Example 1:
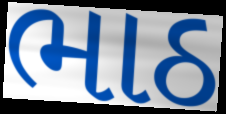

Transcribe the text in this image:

ભાઠ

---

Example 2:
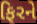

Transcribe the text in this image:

ફિરને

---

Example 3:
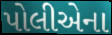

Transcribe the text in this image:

પોલીએના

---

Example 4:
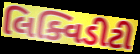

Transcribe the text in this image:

લિક્વિડીટી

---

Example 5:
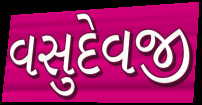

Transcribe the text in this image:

વસુદેવજી